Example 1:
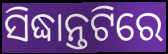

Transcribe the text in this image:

ସିଦ୍ଧାନ୍ତଟିରେ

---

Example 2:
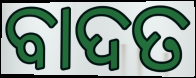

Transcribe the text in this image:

ବାଦତ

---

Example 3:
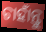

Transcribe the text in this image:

ଚାହାଁନ୍ତୁ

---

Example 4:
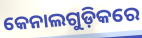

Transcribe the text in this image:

କେନାଲଗୁଡ଼ିକରେ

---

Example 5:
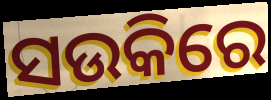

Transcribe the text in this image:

ସଉକିରେ